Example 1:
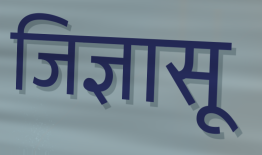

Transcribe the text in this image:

जिज्ञासू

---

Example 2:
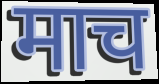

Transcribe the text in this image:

माच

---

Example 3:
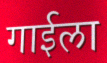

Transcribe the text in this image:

गाईला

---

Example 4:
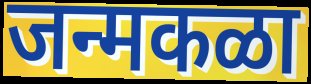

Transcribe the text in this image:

जन्मकळा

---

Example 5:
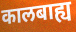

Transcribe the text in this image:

कालबाह्य